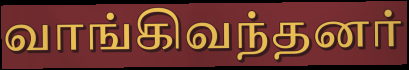
வாங்கிவந்தனர்